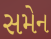
સમેન